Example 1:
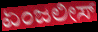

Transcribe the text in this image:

ಏಂಜಲೀಸ್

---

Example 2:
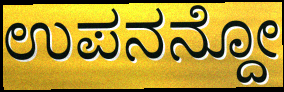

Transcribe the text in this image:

ಉಪನನ್ದೋ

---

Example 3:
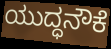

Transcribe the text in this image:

ಯುದ್ಧನೌಕೆ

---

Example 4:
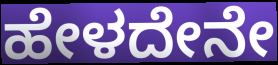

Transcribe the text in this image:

ಹೇಳದೇನೇ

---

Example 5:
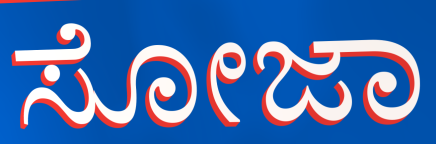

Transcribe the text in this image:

ಸೋಜಾ